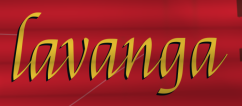
lavanga